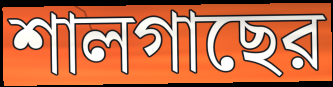
শালগাছের